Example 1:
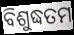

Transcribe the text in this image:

ବିଶୁଦ୍ଧତମ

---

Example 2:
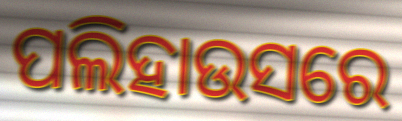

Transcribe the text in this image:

ପଲିହାଉସରେ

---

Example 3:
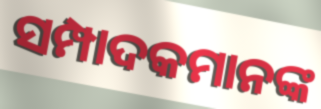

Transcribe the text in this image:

ସମ୍ପାଦକମାନଙ୍କ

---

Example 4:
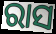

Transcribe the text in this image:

ରାସ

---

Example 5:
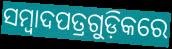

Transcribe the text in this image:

ସମ୍ୱାଦପତ୍ରଗୁଡ଼ିକରେ